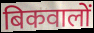
बिकवालों